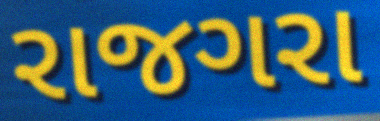
રાજગરા